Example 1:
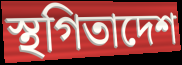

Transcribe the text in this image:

স্থগিতাদেশ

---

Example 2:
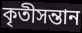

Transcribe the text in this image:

কৃতীসন্তান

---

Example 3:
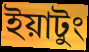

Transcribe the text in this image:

ইয়াটুং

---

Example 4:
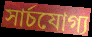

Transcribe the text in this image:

সার্চযোগ্য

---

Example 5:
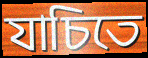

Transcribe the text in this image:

যাচিতে